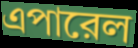
এপারেল